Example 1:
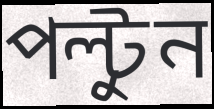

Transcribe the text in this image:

পল্টুন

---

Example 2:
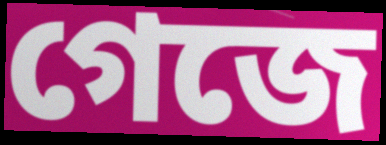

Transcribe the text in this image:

গেজে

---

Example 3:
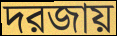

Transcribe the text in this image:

দরজায়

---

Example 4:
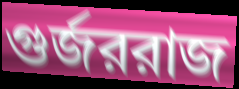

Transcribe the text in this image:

গুর্জররাজ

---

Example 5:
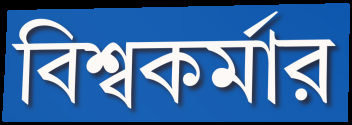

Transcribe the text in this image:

বিশ্বকর্মার